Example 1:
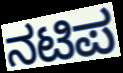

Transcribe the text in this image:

ನಟಿಪ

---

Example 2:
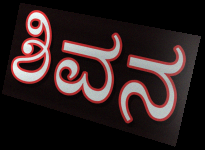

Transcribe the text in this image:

ಶಿವನ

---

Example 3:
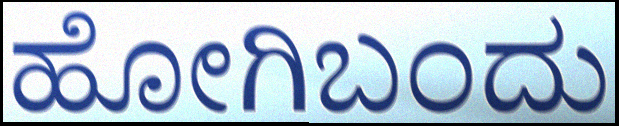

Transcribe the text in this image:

ಹೋಗಿಬಂದು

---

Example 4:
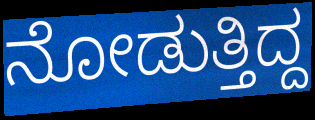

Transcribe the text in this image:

ನೋಡುತ್ತಿದ್ದ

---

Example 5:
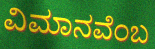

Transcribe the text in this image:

ವಿಮಾನವೆಂಬ